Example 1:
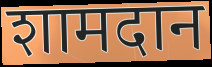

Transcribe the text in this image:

शामदान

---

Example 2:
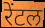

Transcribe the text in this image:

रेंटल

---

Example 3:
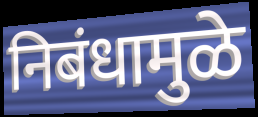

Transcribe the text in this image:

निबंधामुळे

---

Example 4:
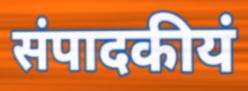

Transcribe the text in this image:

संपादकीयं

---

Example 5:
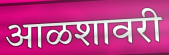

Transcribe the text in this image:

आळशावरी